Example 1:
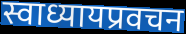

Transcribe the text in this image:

स्वाध्यायप्रवचन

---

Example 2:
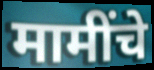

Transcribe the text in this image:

मामींचे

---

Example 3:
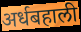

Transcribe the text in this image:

अर्धबहाली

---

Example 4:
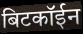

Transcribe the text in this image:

बिटकॉईन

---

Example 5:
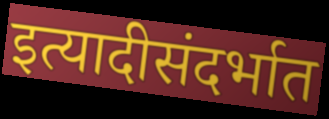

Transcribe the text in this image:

इत्यादीसंदर्भात